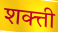
शक्त्ती